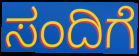
ಸಂದಿಗೆ